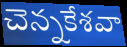
చెన్నకేశవా